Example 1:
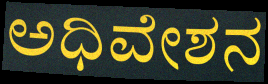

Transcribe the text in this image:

ಅಧಿವೇಶನ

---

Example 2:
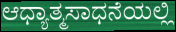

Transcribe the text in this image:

ಆಧ್ಯಾತ್ಮಸಾಧನೆಯಲ್ಲಿ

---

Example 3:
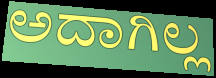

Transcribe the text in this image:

ಅದಾಗಿಲ್ಲ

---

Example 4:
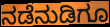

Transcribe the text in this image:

ನಡೆನುಡಿಗೂ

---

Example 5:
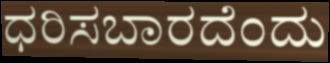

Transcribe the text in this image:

ಧರಿಸಬಾರದೆಂದು